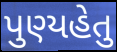
પુણ્યહેતુ